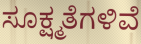
ಸೂಕ್ಷ್ಮತೆಗಳಿವೆ